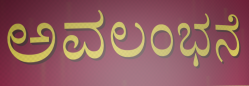
ಅವಲಂಭನೆ